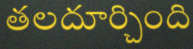
తలదూర్చింది